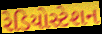
રેડિયોસ્ટેશન